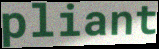
pliant